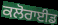
ਕਲੋਰਾਈਡ